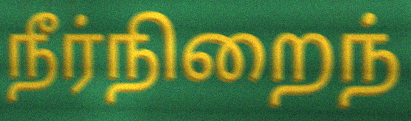
நீர்நிறைந்